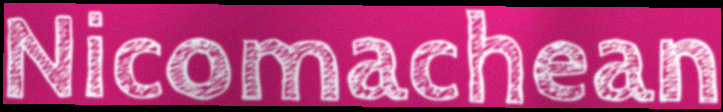
Nicomachean